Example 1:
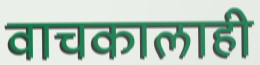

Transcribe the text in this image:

वाचकालाही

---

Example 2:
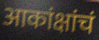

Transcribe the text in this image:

आकांक्षांचं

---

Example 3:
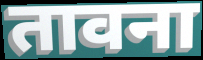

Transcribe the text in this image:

तावना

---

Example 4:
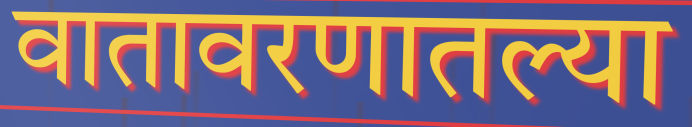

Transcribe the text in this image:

वातावरणातल्या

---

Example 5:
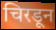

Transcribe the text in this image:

चिरडून